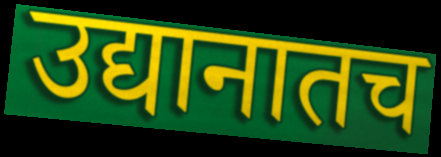
उद्यानातच